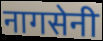
नागसेनी